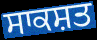
ਸਾਕਸ਼ਤ